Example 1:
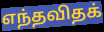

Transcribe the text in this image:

எந்தவிதக்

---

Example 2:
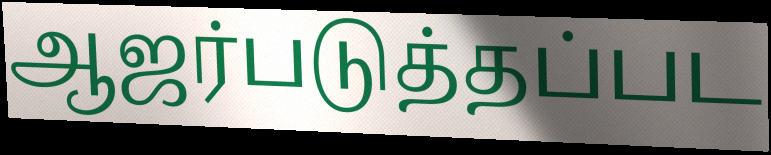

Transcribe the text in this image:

ஆஜர்படுத்தப்பட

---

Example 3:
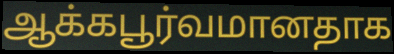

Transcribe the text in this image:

ஆக்கபூர்வமானதாக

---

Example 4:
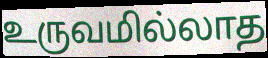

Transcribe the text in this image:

உருவமில்லாத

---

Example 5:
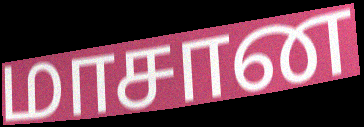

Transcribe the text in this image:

மாசான